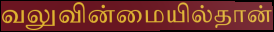
வலுவின்மையில்தான்